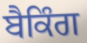
ਬੈਕਿੰਗ